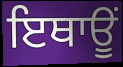
ਇਥਾਊਂ